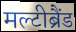
मल्टीब्रैंड